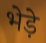
भेड़े